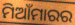
ମିଆଁମାରର